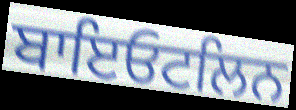
ਬਾਇਓਟਲਿਨ